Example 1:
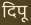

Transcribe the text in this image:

दिपू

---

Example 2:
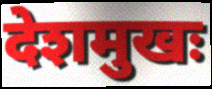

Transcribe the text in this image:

देशमुखः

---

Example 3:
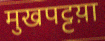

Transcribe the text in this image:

मुखपट्टय़ा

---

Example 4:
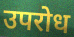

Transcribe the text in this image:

उपरोध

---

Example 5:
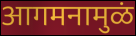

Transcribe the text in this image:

आगमनामुळं